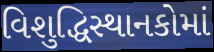
વિશુદ્ધિસ્થાનકોમાં